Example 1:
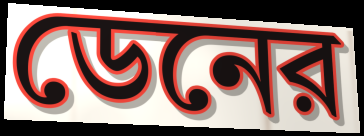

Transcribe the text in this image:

ডেনের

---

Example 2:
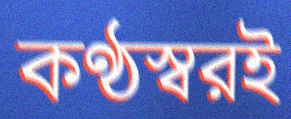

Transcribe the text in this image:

কণ্ঠস্বরই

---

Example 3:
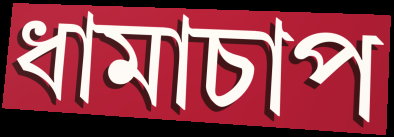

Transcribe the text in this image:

ধামাচাপ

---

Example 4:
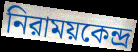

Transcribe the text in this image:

নিরাময়কেন্দ্র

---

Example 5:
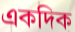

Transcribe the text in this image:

একদিক